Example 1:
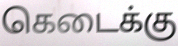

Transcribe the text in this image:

கெடைக்கு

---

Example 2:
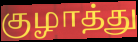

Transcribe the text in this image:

குழாத்து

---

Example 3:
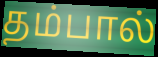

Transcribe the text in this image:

தம்பால்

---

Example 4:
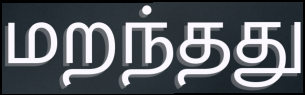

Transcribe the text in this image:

மறந்தது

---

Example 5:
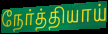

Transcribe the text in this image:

நேர்த்தியாய்